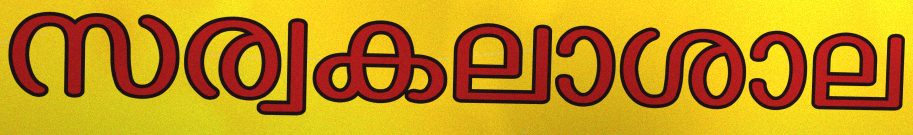
സര്വകലാശാല